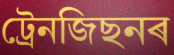
ট্ৰেনজিছনৰ